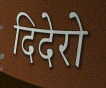
दिदेरो